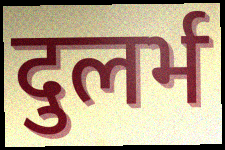
दुलर्भ